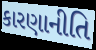
કારણાનીતિ